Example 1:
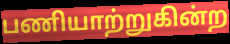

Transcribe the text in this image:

பணியாற்றுகின்ற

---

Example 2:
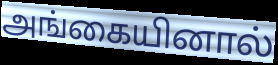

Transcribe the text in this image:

அங்கையினால்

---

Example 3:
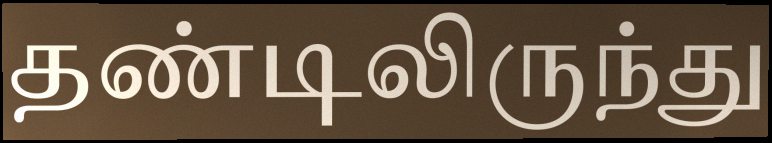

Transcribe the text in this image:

தண்டிலிருந்து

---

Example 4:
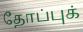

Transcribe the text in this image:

தோப்புக்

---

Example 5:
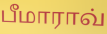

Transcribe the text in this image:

பீமாராவ்